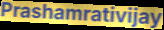
Prashamrativijay